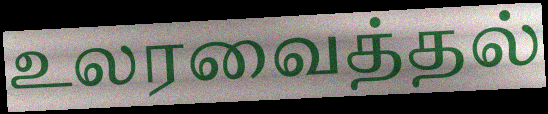
உலரவைத்தல்